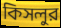
কিসলুর